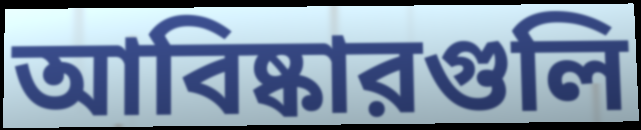
আবিষ্কারগুলি